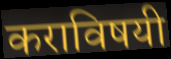
कराविषयी